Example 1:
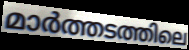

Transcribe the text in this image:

മാർത്തടത്തിലെ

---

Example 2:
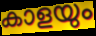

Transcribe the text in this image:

കാളയും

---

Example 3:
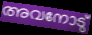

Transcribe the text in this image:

അവനോടു്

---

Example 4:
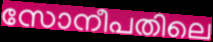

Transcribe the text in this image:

സോനീപതിലെ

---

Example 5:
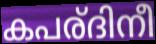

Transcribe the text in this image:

കപര്ദിനീ